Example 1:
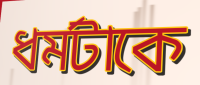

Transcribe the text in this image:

ধর্মটাকে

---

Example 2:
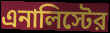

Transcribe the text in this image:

এনালিস্টের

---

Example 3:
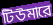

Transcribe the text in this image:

টিউমারে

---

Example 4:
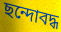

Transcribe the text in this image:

ছন্দোবদ্ধ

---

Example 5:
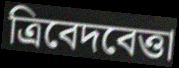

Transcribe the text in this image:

ত্রিবেদবেত্তা